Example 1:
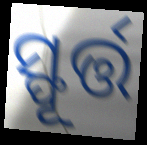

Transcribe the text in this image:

ସ୍ଫୂର୍ତ୍ତ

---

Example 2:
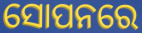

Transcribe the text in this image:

ସୋପନରେ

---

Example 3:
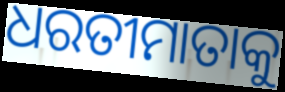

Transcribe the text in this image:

ଧରତୀମାତାକୁ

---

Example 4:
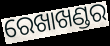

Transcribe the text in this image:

ରେଖାଖଣ୍ଡର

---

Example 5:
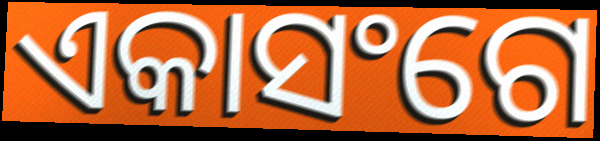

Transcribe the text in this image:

ଏକାସଂଗେ